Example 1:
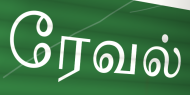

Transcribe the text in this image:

ரேவல்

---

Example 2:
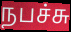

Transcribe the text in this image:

நபச்சு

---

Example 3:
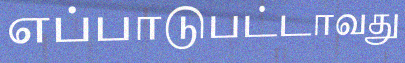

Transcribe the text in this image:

எப்பாடுபட்டாவது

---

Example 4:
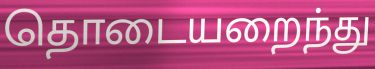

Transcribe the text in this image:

தொடையறைந்து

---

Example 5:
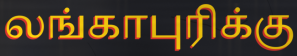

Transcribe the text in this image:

லங்காபுரிக்கு